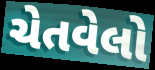
ચેતવેલો